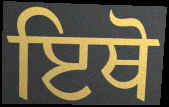
ਇਥੋ